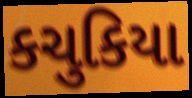
કચુકિયા